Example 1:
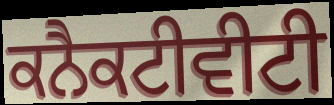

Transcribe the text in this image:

ਕਨੈਕਟੀਵੀਟੀ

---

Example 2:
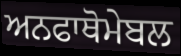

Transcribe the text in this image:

ਅਨਫਾਥੋਮੇਬਲ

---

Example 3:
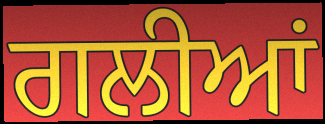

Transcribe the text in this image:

ਗਲੀਆਂ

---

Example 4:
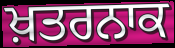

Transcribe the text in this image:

ਖ਼ਤਰਨਾਕ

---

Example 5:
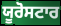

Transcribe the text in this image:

ਯੂਰੋਸਟਾਰ